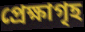
প্ৰেক্ষাগৃহ